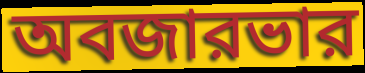
অবজারভার